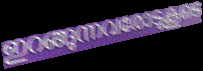
ഇറങ്ങുന്നവരോടുകൂടെ